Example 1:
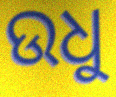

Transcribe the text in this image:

ଉଧୁ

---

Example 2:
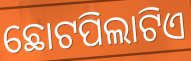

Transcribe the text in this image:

ଛୋଟପିଲାଟିଏ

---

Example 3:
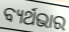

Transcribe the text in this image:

ବ୍ୟର୍ଥଭାର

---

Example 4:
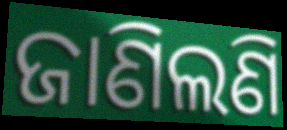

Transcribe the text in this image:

ଜାଣିଲଣି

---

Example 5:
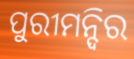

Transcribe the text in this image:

ପୁରୀମନ୍ଦିର